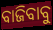
ବାଜିବାବୁ